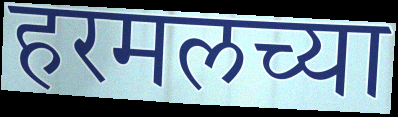
हरमलच्या